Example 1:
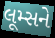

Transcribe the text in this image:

લૂમ્સને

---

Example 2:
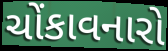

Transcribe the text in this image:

ચોંકાવનારો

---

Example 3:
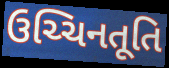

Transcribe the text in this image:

ઉચ્ચિનતૂતિ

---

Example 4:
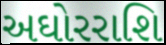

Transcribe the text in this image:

અઘોરરાશિ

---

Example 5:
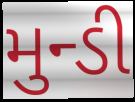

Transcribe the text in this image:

મુન્ડી